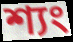
শ্যং